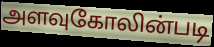
அளவுகோலின்படி